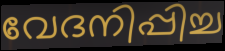
വേദനിപ്പിച്ച